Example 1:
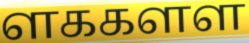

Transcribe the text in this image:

ளககளள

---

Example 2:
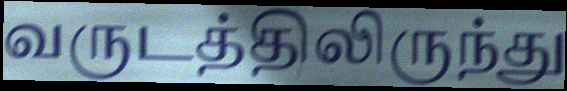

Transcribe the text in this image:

வருடத்திலிருந்து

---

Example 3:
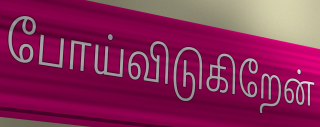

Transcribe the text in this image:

போய்விடுகிறேன்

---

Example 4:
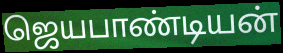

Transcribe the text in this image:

ஜெயபாண்டியன்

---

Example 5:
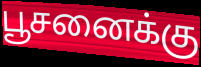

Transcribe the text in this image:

பூசனைக்கு